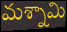
మశ్నామి